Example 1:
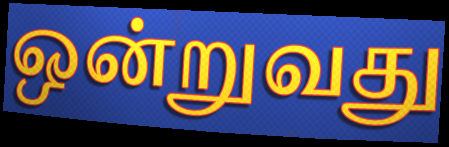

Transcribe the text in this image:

ஒன்றுவது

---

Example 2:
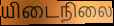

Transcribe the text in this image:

யிடைநிலை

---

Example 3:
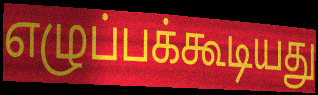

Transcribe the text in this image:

எழுப்பக்கூடியது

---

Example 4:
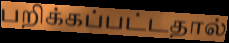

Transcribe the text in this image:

பறிக்கப்பட்டதால்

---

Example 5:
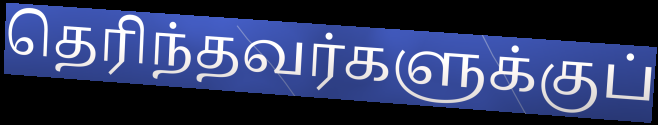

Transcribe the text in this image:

தெரிந்தவர்களுக்குப்